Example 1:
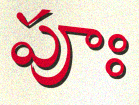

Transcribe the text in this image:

పూః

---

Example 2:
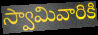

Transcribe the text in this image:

స్వామివారికి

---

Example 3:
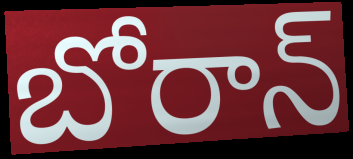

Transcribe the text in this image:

బోరాన్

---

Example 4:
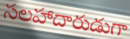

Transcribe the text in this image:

సలహాదారుడుగా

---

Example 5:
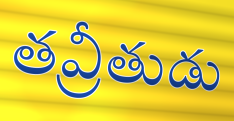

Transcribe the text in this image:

తవ్రీతుడు